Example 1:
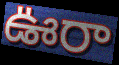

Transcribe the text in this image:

ఊరా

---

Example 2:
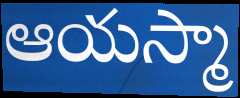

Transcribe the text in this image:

ఆయస్మా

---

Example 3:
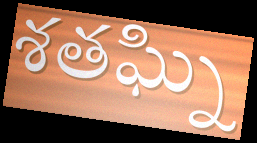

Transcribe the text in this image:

శతఘ్ని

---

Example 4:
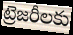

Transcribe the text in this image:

ట్రెజరీలకు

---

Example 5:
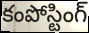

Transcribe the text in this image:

కంపోస్టింగ్